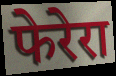
फेरेरा